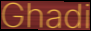
Ghadi